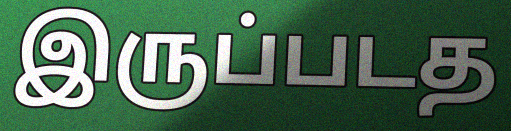
இருப்படத